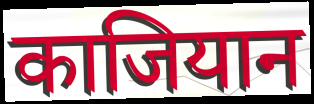
काजियान